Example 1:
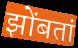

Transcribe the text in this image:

झोंबतां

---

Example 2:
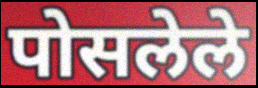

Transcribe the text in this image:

पोसलेले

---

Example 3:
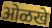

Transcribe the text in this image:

ओळखे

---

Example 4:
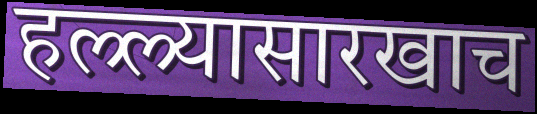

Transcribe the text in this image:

हल्ल्यासारखाच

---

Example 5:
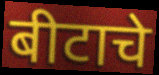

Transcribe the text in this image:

बीटाचे